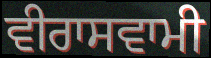
ਵੀਰਾਸਵਾਮੀ